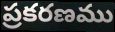
ప్రకరణము